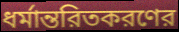
ধর্মান্তরিতকরণের